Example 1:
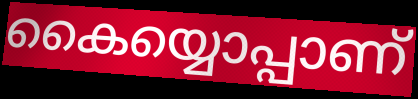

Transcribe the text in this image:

കൈയ്യൊപ്പാണ്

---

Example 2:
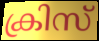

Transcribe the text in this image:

ക്രിസ്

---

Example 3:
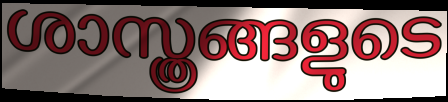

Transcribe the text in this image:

ശാസ്ത്രങ്ങളുടെ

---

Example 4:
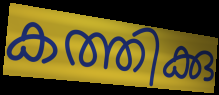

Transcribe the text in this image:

കത്തിക്കു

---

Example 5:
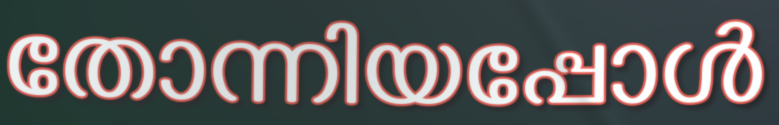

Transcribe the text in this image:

തോന്നിയപ്പോൾ